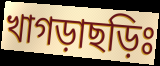
খাগড়াছড়িঃ